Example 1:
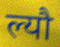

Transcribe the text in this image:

ल्यौ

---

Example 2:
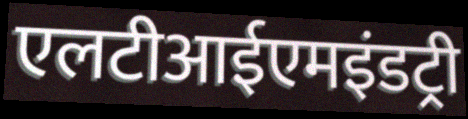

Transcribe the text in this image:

एलटीआईएमइंडट्री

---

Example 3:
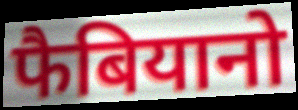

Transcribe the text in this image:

फैबियानो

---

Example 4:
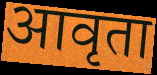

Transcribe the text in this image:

आवृता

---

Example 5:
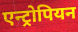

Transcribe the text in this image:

एन्ट्रोपियन